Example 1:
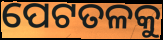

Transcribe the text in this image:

ପେଟତଳକୁ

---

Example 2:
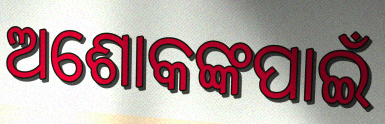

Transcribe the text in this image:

ଅଶୋକଙ୍କପାଇଁ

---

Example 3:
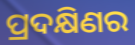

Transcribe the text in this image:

ପ୍ରଦକ୍ଷିଣର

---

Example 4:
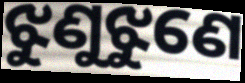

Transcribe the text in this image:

ଝୁଣୁଝୁଣେ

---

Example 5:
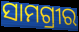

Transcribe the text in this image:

ସାମଗ୍ରୀର